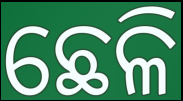
ଛେଳି